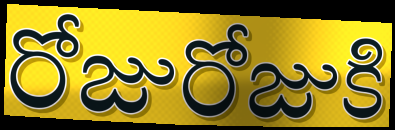
రోజురోజుకి